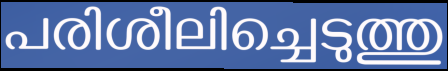
പരിശീലിച്ചെടുത്തു